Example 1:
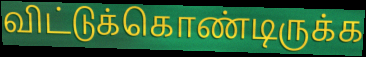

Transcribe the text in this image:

விட்டுக்கொண்டிருக்க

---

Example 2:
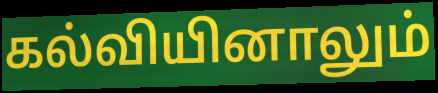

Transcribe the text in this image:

கல்வியினாலும்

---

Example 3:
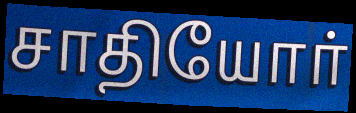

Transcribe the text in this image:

சாதியோர்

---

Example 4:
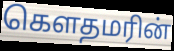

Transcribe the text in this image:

கௌதமரின்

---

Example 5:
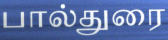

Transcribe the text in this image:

பால்துரை